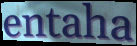
entaha